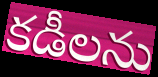
కడీలను